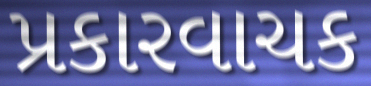
પ્રકારવાચક